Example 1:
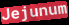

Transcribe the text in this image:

Jejunum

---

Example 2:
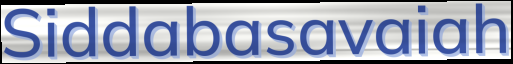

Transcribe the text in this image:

Siddabasavaiah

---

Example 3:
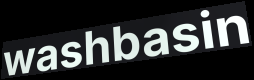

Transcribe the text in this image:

washbasin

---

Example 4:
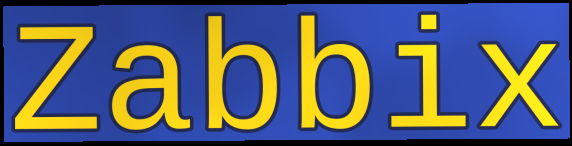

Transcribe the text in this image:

Zabbix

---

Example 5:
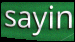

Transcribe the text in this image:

sayin